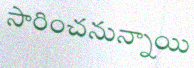
సారించనున్నాయి